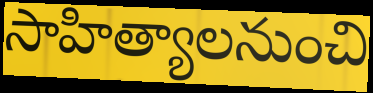
సాహిత్యాలనుంచి